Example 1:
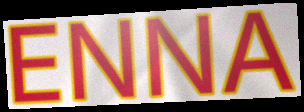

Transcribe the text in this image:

ENNA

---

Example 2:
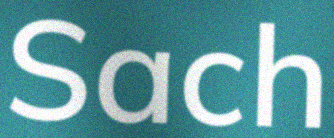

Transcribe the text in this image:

Sach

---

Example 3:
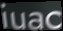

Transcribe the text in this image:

iuac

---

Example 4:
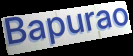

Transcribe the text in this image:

Bapurao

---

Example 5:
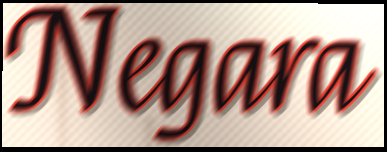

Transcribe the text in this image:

Negara